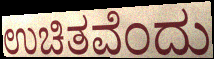
ಉಚಿತವೆಂದು